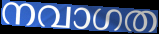
നവാഗത